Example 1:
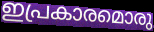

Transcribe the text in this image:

ഇപ്രകാരമൊരു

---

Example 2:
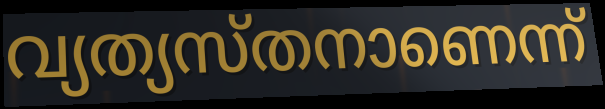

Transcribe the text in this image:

വ്യത്യസ്തനാണെന്ന്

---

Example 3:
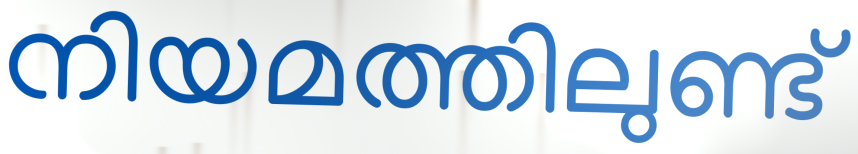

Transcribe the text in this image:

നിയമത്തിലുണ്ട്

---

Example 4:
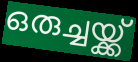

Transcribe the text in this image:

ഒരുച്ചയ്ക്ക്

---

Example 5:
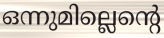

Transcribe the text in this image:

ഒന്നുമില്ലെന്റെ